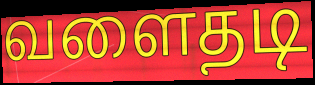
வளைதடி